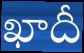
ఖాదీ